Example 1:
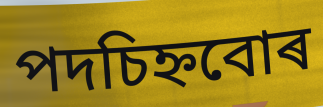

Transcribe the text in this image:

পদচিহ্নবোৰ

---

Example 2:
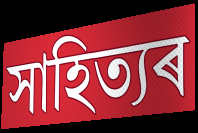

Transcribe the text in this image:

সাহিত্য়ৰ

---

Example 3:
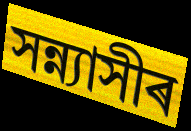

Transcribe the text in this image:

সন্ন্যাসীৰ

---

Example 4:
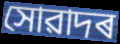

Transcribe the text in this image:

সোৱাদৰ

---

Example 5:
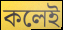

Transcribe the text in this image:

কলেই